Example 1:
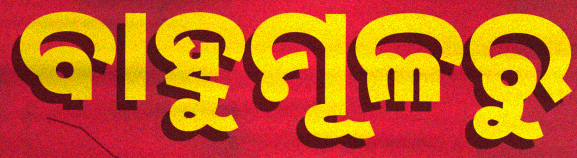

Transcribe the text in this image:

ବାହୁମୂଳରୁ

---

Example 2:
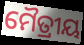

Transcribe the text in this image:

ମୈତ୍ରୀୟ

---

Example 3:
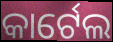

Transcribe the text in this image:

କାର୍ଟେଲ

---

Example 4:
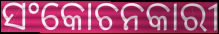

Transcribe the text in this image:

ସଂକୋଚନକାରୀ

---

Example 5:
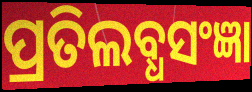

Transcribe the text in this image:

ପ୍ରତିଲବ୍ଧସଂଜ୍ଞା